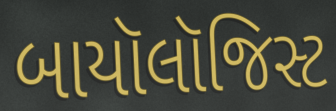
બાયૉલૉજિસ્ટ